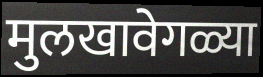
मुलखावेगळ्या